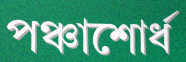
পঞ্চাশোর্ধ